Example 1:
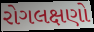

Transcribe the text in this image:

રોગલક્ષણો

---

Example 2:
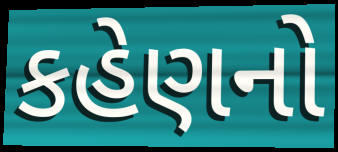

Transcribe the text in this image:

કહેણનો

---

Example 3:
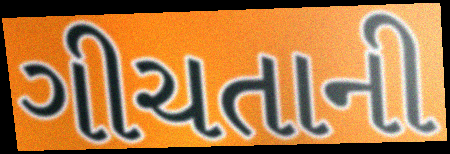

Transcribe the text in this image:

ગીચતાની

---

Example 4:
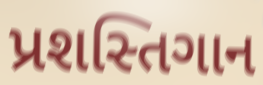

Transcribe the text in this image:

પ્રશસ્તિગાન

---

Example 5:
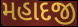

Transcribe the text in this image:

મહાદજી